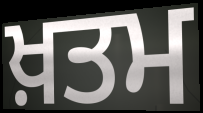
ਖ਼ਤਮ